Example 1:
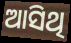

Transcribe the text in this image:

ଆସିଥି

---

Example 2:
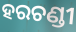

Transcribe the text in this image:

ହରଚଣ୍ଡୀ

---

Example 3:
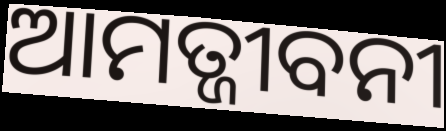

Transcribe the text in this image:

ଆମତ୍ଜୀବନୀ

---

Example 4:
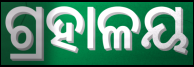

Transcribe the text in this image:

ଗ୍ରହାଳୟ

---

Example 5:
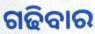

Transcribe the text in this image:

ଗଢିବାର